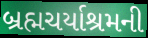
બ્રહ્મચર્યાશ્રમની